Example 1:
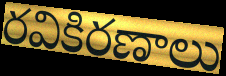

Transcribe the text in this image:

రవికిరణాలు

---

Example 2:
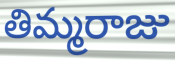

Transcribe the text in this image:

తిమ్మరాజు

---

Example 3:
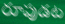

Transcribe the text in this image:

రూపుడట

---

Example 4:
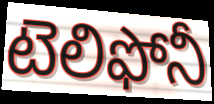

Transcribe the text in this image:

టెలిఫోనీ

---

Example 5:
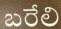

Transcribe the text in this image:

బరేలి